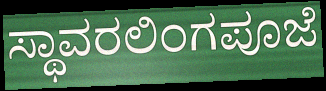
ಸ್ಥಾವರಲಿಂಗಪೂಜೆ